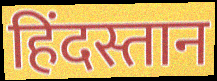
हिंदस्तान